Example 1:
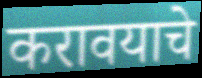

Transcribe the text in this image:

करावयाचे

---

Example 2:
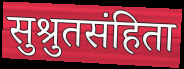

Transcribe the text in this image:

सुश्रुतसंहिता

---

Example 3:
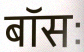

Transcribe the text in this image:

बॉसः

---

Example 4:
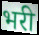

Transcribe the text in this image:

भरी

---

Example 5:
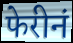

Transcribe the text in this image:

फेरीनं